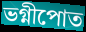
ভগ্নীপোত